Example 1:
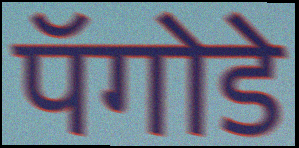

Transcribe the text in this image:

पॅगोडे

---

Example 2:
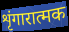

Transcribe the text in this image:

शृंगारात्मक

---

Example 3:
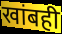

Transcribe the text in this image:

खांबही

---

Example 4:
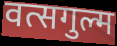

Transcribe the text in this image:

वत्सगुल्म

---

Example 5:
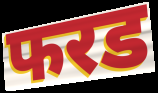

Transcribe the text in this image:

फरड